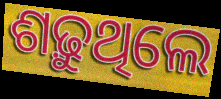
ଶଢ଼ୁଥିଲେ